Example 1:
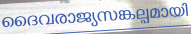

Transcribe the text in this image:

ദൈവരാജ്യസങ്കല്പമായി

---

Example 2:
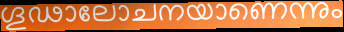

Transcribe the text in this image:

ഗൂഢാലോചനയാണെന്നും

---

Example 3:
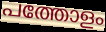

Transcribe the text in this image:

പത്തോളം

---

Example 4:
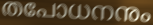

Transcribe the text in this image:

തപോധനനും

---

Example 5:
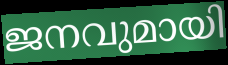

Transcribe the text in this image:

ജനവുമായി